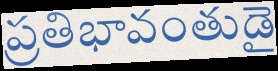
ప్రతిభావంతుడై